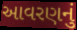
આવરણનું